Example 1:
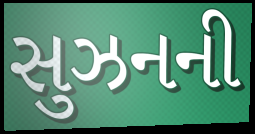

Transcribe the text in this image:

સુઝનની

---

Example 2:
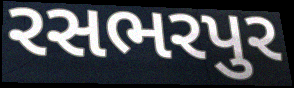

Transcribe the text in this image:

રસભરપુર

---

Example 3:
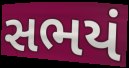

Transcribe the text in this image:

સભયં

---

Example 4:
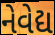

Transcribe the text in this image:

નેવેદ્ય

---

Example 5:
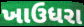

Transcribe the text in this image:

ખાઉધરા